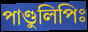
পাণ্ডুলিপিঃ